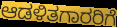
ಆಡಳಿತಗಾರರಿಗೆ